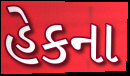
હેકના